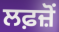
ਲਫ਼ਜ਼ੋਂ